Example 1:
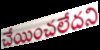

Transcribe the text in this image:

చేయించలేదని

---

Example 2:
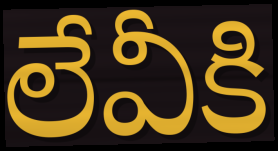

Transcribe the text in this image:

లేవీకి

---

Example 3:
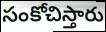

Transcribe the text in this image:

సంకోచిస్తారు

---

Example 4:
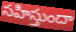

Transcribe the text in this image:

సహిస్తుందా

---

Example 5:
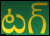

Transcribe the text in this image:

టగ్